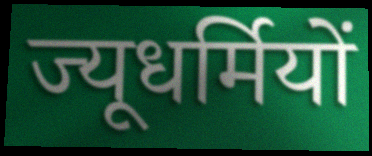
ज्यूधर्मियों